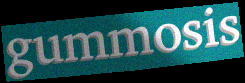
gummosis